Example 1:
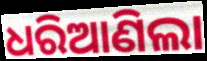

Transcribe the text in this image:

ଧରିଆଣିଲା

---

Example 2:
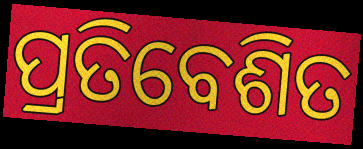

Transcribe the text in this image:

ପ୍ରତିବେଶିତ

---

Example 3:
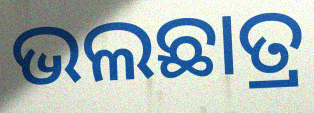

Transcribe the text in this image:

ଭଲଛାତ୍ର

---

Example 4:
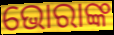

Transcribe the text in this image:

ଭୋରାଙ୍କ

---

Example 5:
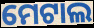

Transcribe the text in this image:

ମେଟାଲ